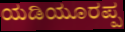
ಯಡಿಯೂರಪ್ಪ